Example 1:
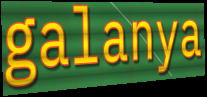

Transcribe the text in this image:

galanya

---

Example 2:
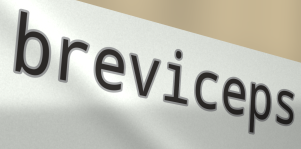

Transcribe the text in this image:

breviceps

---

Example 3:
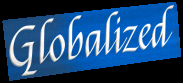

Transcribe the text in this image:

Globalized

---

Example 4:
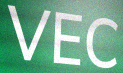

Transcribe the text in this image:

VEC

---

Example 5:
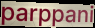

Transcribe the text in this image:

parppani